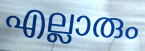
എല്ലാരും